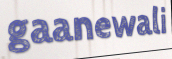
gaanewali